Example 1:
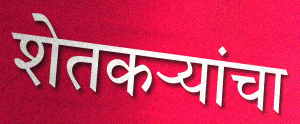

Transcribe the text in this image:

शेतकर्‍यांचा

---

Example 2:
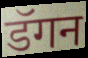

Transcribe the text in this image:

डॅगन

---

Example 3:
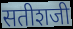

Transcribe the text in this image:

सतीशजी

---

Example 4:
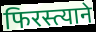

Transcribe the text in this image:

फिरस्त्याने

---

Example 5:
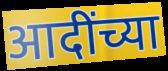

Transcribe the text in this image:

आदींच्या